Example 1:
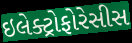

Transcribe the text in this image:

ઇલેક્ટ્રોફોરેસીસ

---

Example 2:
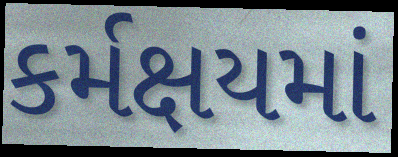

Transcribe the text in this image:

કર્મક્ષયમાં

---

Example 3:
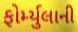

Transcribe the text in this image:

ફોર્મ્યુલાની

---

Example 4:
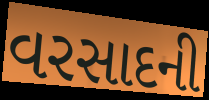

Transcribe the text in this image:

વરસાદની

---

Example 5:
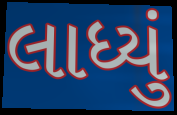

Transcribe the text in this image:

લાધ્યું